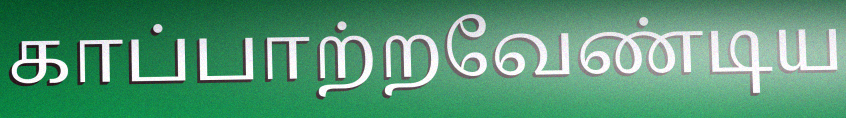
காப்பாற்றவேண்டிய